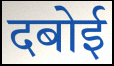
दबोई